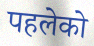
पहलेको